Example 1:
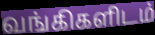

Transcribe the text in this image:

வங்கிகளிடம்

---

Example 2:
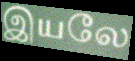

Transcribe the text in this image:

இயலே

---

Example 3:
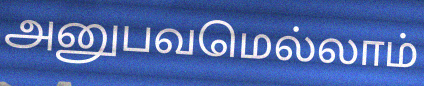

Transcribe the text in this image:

அனுபவமெல்லாம்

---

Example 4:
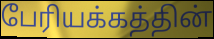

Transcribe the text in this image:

பேரியக்கத்தின்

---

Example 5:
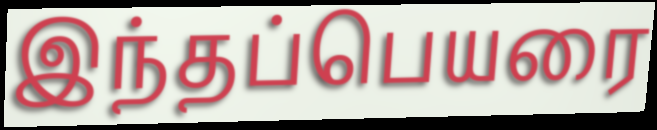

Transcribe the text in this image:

இந்தப்பெயரை